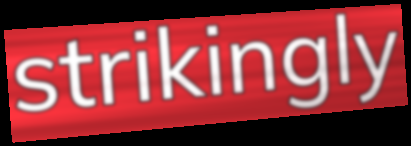
strikingly